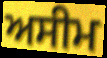
ਅਸੀਮ